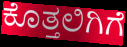
ಕೊತ್ತಲಿಗಿಗೆ